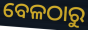
ବେଳଠାରୁ